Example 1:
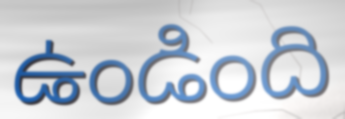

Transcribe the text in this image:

ఉండింది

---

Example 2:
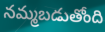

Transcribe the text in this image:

నమ్మబడుతోంది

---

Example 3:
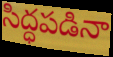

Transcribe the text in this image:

సిద్ధపడినా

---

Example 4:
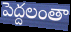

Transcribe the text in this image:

పెద్దలంతా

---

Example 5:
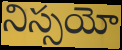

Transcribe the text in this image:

నిస్సయో